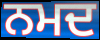
ਨਮਦ